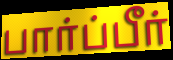
பார்ப்பீர்